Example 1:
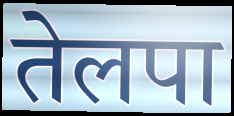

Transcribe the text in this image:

तेलपा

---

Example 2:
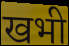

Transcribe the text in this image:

खभी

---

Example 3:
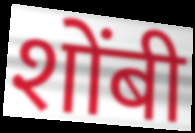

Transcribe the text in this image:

शोंबी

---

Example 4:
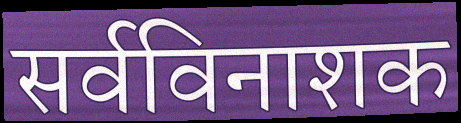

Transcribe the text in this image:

सर्वविनाशक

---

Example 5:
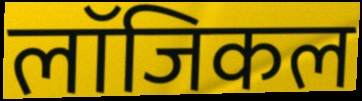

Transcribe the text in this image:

लॉजिकल